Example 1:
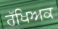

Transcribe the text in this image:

ਰੱਖਿਅਕ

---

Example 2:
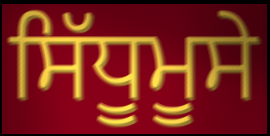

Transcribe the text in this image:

ਸਿੱਧੂਮੂਸੇ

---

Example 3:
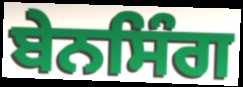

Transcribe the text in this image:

ਬੇਨਸਿੰਗ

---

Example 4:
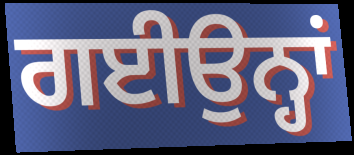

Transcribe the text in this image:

ਗਈਉਨ੍ਹਾਂ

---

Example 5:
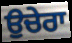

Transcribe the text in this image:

ਉਚੇਰਾ